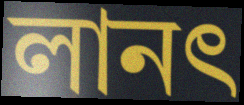
লানৎ